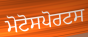
ਮੋਟੋਸਪੋਰਟਸ